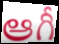
ఆగీ